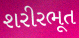
શરીરભૂત